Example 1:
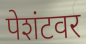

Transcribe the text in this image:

पेशंटवर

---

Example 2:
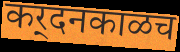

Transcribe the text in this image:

कर्दनकाळच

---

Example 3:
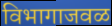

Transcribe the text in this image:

विभागाजवळ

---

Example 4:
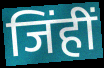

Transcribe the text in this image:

जिंहीं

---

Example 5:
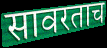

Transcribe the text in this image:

सावरताच